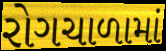
રોગચાળામાં